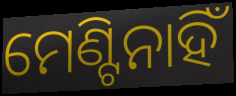
ମେଣ୍ଟିନାହିଁ